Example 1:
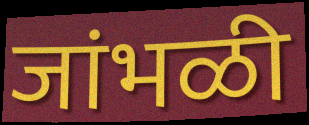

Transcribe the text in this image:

जांभळी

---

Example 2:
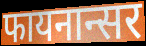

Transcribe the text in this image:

फायनान्सर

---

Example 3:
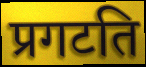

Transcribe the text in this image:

प्रगटति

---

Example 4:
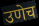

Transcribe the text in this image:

उणेच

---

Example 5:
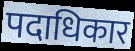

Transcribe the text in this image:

पदाधिकार